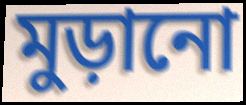
মুড়ানো